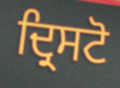
ਦ੍ਰਿਸਟੋ